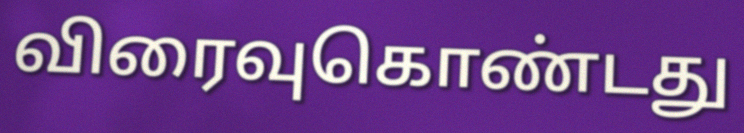
விரைவுகொண்டது